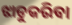
ଝାଡୁକରିବା